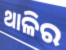
ଥାଳିର